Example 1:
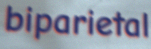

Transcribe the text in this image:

biparietal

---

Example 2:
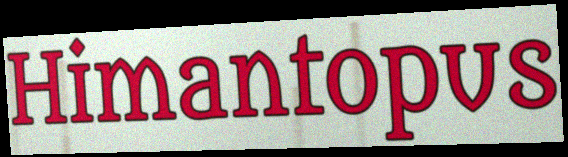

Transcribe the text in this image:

Himantopus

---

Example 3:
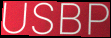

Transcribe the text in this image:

USBP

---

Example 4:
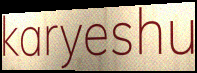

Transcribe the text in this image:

karyeshu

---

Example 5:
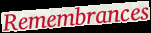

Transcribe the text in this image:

Remembrances